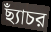
ছ্যাঁচর